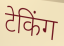
टेकिंग